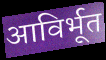
आविर्भूत